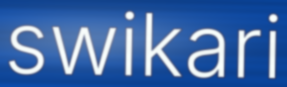
swikari